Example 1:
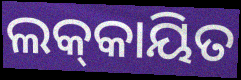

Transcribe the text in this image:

ଲକ୍‌କାୟିତ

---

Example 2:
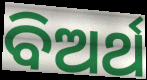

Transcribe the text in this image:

ବିଅର୍ଥ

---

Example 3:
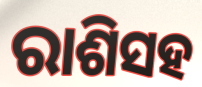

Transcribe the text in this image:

ରାଶିସହ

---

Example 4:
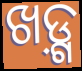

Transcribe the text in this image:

ଖଡ଼୍ଗ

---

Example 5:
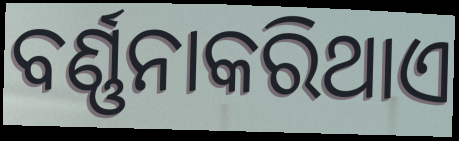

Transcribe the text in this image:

ବର୍ଣ୍ଣନାକରିଥାଏ